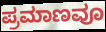
ಪ್ರಮಾಣವೂ